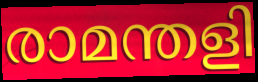
രാമന്തളി